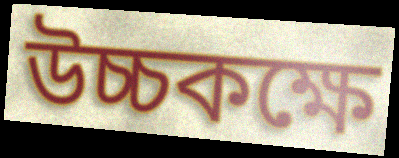
উচ্চকক্ষে